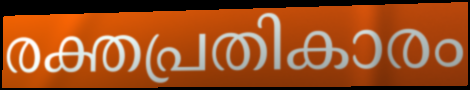
രക്തപ്രതികാരം